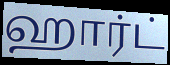
ஹார்ட்